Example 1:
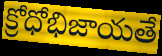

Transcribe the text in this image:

క్రోధోభిజాయతే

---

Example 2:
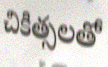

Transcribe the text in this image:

చికిత్సలతో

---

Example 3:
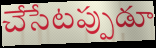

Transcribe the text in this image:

చేసేటప్పుడూ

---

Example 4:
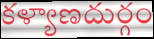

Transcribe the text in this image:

కళ్యాణదుర్గం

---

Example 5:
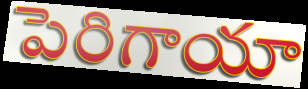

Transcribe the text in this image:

పెరిగాయా